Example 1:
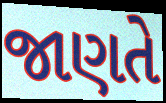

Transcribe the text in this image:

જાણતે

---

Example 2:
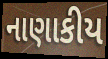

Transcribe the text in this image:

નાણાકીય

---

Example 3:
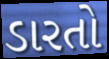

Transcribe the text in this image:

ડારતો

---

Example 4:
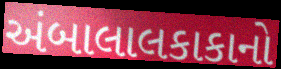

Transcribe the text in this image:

અંબાલાલકાકાનો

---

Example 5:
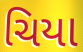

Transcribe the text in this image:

ચિયા